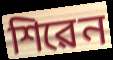
শিৱেন